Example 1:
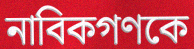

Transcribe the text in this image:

নাবিকগণকে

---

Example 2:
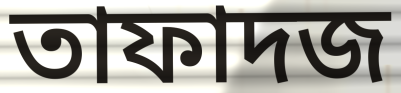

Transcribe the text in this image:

তাফাদজ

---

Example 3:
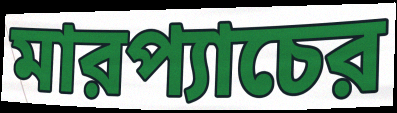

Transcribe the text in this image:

মারপ্যাচের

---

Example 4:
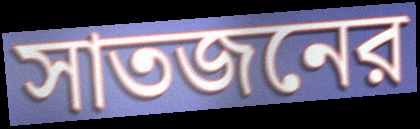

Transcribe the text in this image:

সাতজনের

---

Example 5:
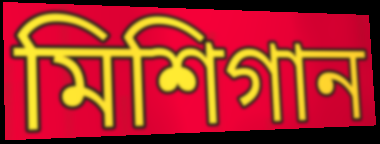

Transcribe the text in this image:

মিশিগান